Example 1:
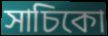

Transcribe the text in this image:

সাচিকো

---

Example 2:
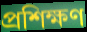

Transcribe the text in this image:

প্রশিক্ষণ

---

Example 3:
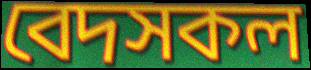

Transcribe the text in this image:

বেদসকল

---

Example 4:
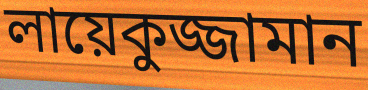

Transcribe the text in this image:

লায়েকুজ্জামান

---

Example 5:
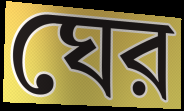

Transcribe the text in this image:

ঘের